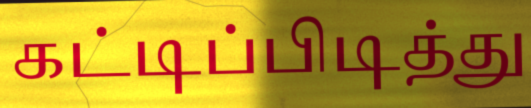
கட்டிப்பிடித்து